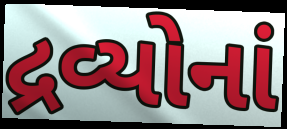
દ્રવ્યોનાં